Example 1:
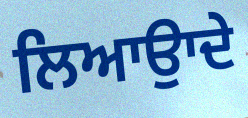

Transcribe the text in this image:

ਲਿਆਉਾਦੇ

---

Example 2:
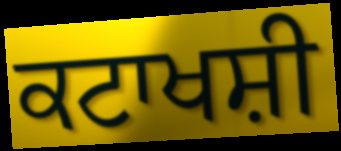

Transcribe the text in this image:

ਕਟਾਖਸ਼ੀ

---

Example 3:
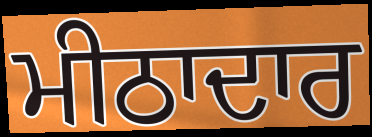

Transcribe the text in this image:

ਮੀਠਾਦਾਰ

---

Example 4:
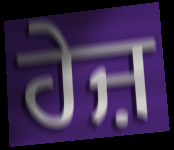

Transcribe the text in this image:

ਹੇਜ਼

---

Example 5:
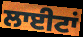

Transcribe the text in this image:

ਲਾਈਟਾਂ